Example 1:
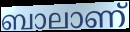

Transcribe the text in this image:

ബാലാണ്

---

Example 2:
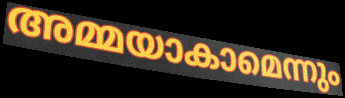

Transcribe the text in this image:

അമ്മയാകാമെന്നും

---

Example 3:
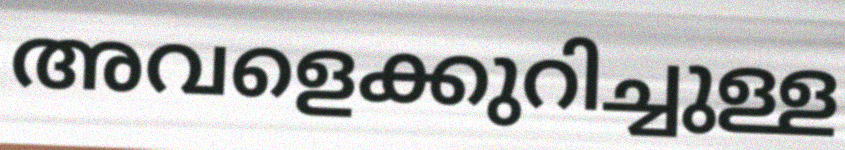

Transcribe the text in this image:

അവളെക്കുറിച്ചുള്ള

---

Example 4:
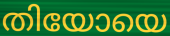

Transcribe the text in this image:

തിയോയെ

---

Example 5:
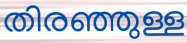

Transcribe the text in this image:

തിരഞ്ഞുള്ള